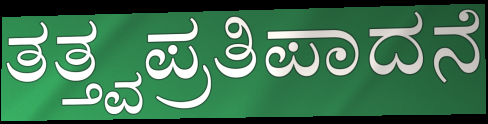
ತತ್ತ್ವಪ್ರತಿಪಾದನೆ